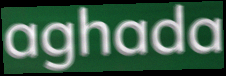
aghada